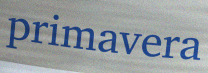
primavera